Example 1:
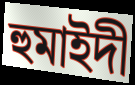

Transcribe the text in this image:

হুমাইদী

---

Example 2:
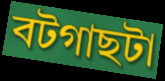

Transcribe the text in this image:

বটগাছটা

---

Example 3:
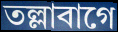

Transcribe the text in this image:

তল্লাবাগে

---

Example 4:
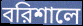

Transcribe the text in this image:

বরিশালে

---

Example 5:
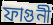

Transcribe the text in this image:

ফাগুনী